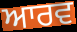
ਆਰਵ